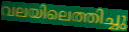
വലയിലെത്തിച്ചു